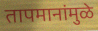
तापमानांमुळे